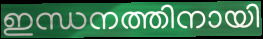
ഇന്ധനത്തിനായി